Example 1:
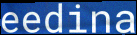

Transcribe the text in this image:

eedina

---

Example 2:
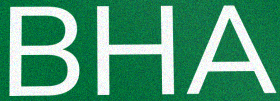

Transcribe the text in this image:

BHA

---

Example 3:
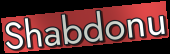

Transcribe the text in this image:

Shabdonu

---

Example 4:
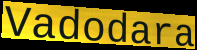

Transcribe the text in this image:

Vadodara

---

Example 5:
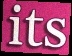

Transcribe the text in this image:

its